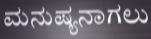
ಮನುಷ್ಯನಾಗಲು